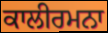
ਕਾਲੀਰਮਨਾ